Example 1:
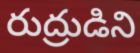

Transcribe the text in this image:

రుద్రుడిని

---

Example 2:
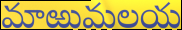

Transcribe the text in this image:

మాఱుమలయ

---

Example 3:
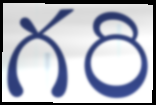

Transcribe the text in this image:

గరి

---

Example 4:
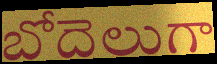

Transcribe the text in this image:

బోదెలుగా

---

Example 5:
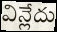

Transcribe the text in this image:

విన్లేదు